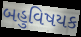
બહુવિષયક